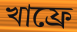
খাফ্রে